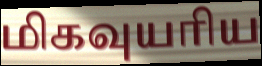
மிகவுயரிய